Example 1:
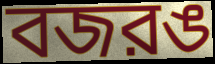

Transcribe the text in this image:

বজরঙ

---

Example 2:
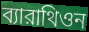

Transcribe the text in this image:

ব্যারাথিওন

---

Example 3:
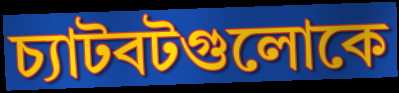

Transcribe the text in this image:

চ্যাটবটগুলোকে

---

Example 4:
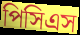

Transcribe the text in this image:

পিসিএস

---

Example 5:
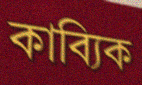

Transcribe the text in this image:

কাব্যিক